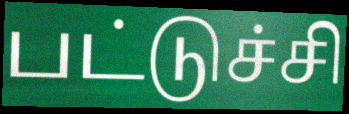
பட்டுச்சி